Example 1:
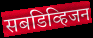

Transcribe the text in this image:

सबडिव्हिजन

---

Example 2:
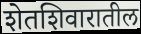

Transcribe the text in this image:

शेतशिवारातील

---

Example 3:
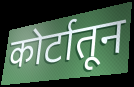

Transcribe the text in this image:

कोर्टातून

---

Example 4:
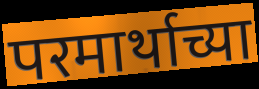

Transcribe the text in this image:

परमार्थाच्या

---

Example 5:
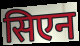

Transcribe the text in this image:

सिएन